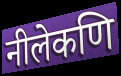
नीलेकणि